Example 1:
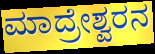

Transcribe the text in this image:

ಮಾದ್ರೇಶ್ವರನ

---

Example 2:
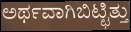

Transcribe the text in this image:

ಅರ್ಥವಾಗಿಬಿಟ್ಟಿತ್ತು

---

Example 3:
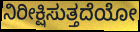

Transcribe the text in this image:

ನಿರೀಕ್ಷಿಸುತ್ತದೆಯೋ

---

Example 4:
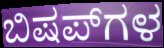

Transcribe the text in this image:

ಬಿಷಪ್‌ಗಳ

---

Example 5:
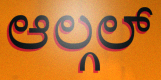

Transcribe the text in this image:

ಆಲ್ಗಲ್